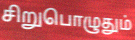
சிறுபொழுதும்